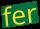
fer